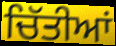
ਚਿੱਤੀਆਂ